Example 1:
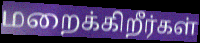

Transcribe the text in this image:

மறைக்கிறீர்கள்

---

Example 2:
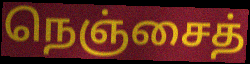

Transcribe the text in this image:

நெஞ்சைத்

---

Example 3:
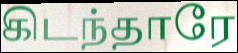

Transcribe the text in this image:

கிடந்தாரே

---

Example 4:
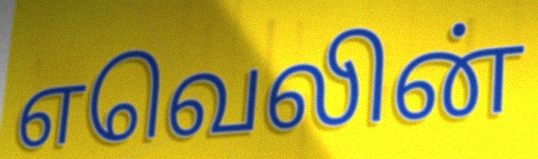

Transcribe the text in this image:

எவெலின்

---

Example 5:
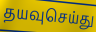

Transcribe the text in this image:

தயவுசெய்து